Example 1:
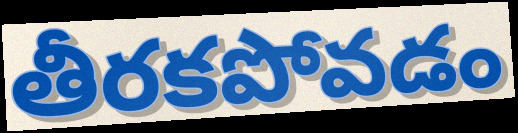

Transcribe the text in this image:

తీరకపోవడం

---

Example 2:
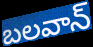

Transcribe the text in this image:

బలవాన్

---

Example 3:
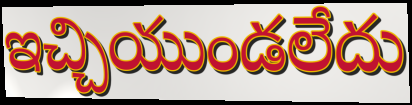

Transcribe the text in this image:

ఇచ్చియుండలేదు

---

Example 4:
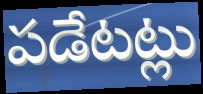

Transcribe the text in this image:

పడేటట్లు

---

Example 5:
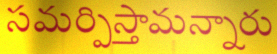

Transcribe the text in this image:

సమర్పిస్తామన్నారు